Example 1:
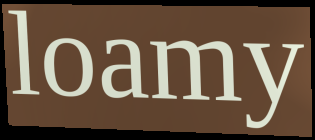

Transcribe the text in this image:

loamy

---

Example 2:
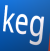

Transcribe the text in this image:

keg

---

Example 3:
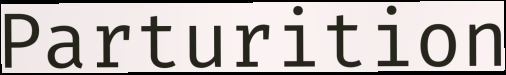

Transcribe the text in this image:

Parturition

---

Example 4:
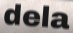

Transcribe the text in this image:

dela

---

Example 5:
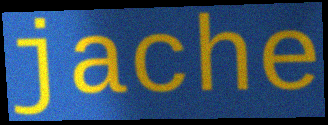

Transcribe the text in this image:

jache